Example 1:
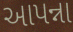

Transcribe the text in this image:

આપન્ના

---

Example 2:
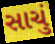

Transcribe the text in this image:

સાચું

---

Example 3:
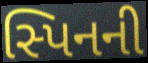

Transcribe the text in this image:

સ્પિનની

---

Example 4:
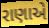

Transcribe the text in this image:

રાણાએ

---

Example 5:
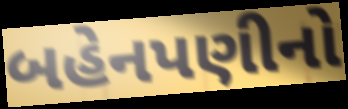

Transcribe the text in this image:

બહેનપણીનો